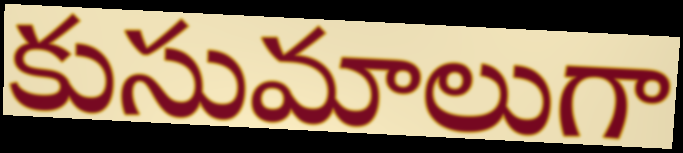
కుసుమాలుగా